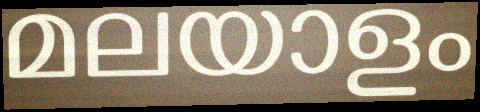
മലയാളം